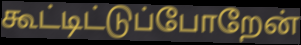
கூட்டிட்டுப்போறேன்